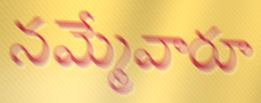
నమ్మేవారూ